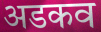
अडकव